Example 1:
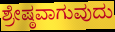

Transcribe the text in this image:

ಶ್ರೇಷ್ಠವಾಗುವುದು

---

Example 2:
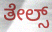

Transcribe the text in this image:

ತೇಲ್ಸ್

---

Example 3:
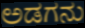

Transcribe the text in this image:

ಅಡಗನು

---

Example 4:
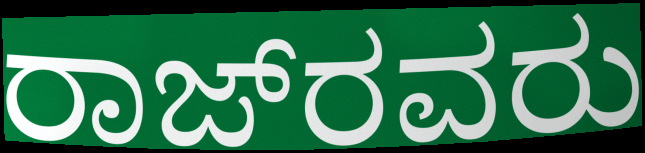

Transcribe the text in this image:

ರಾಜ್‌ರವರು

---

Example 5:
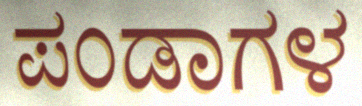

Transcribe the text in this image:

ಪಂಡಾಗಳ